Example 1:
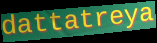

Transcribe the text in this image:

dattatreya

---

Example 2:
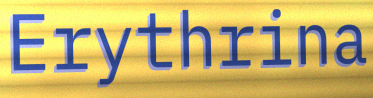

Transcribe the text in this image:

Erythrina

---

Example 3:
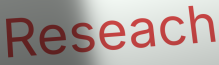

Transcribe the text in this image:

Reseach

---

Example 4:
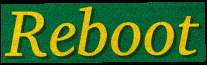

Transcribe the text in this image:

Reboot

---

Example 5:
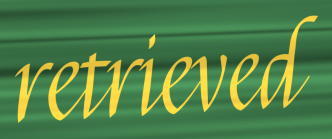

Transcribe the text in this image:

retrieved